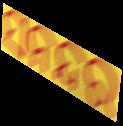
ସନନ୍ଦର